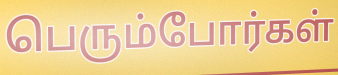
பெரும்போர்கள்